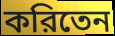
করিতেন